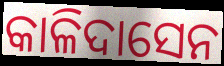
କାଳିଦାସେନ